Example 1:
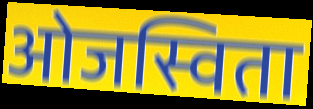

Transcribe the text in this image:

ओजस्विता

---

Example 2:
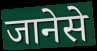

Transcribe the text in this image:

जानेसे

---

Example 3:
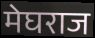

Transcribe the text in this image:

मेघराज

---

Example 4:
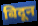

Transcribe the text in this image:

बिदून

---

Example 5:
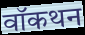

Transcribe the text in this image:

वॉकथन